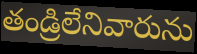
తండ్రిలేనివారును